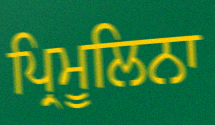
ਪ੍ਰਿਮੂਲਿਨਾ